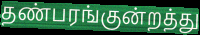
தண்பரங்குன்றத்து